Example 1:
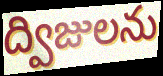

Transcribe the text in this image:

ద్విజులను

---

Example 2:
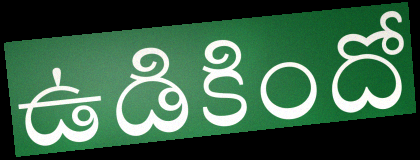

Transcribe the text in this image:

ఉడికిందో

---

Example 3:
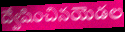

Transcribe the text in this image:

ద్వేషించినయెడల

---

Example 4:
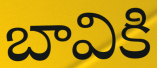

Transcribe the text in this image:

బావికి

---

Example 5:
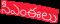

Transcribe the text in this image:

సీఎంఈలు